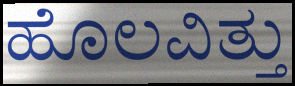
ಹೊಲವಿತ್ತು